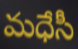
మధేసీ